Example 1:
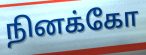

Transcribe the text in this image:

நினக்கோ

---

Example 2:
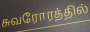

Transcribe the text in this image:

சுவரோரத்தில்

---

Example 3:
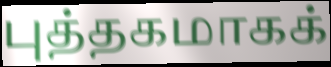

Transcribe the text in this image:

புத்தகமாகக்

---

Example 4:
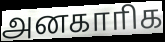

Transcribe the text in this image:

அனகாரிக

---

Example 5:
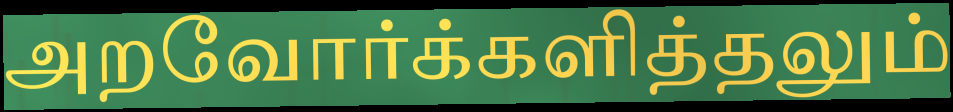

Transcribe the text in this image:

அறவோர்க்களித்தலும்